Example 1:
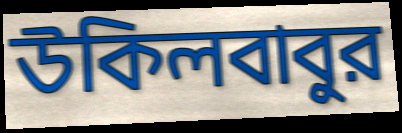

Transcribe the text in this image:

উকিলবাবুর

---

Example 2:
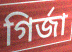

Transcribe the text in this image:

গির্জা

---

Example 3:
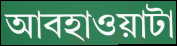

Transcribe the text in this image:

আবহাওয়াটা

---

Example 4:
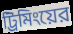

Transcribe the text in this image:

ট্রিমিংয়ের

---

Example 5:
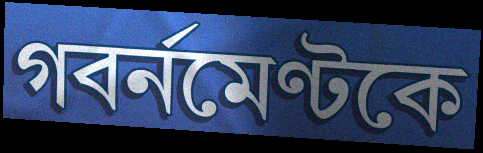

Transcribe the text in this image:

গবর্নমেণ্টকে